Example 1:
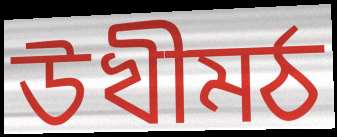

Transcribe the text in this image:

উখীমঠ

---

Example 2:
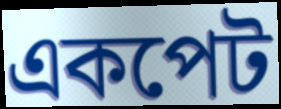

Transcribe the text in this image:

একপেট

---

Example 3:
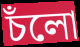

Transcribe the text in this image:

চঁলো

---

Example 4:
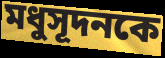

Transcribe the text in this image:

মধুসূদনকে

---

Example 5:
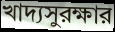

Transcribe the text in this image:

খাদ্যসুরক্ষার